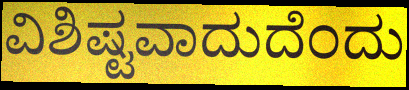
ವಿಶಿಷ್ಟವಾದುದೆಂದು